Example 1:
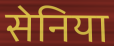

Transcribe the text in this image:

सेनिया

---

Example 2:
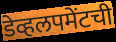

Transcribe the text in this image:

डेव्हलपमेंटची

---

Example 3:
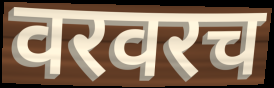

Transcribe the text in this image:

वरवरच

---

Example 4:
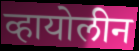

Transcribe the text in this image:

व्हायोलीन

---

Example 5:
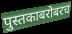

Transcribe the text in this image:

पुस्तकाबरोबरच